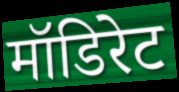
मॉडिरेट